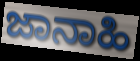
ಜಾನಾಹಿ